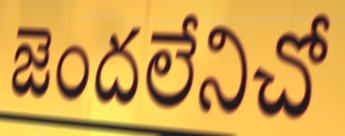
జెందలేనిచో